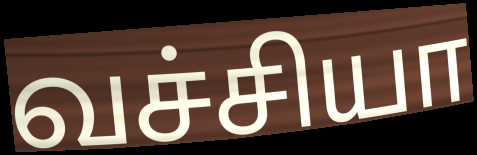
வச்சியா